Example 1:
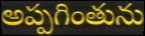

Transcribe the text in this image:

అప్పగింతును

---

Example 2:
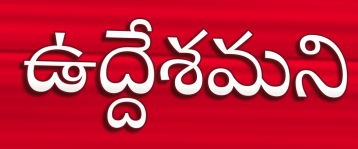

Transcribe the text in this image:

ఉద్దేశమని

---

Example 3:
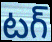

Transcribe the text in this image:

టగ్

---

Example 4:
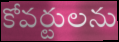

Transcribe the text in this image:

కోవర్టులను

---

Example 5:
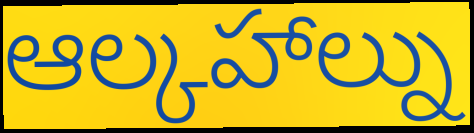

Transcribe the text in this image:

ఆల్కహాల్ను